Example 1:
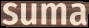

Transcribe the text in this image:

suma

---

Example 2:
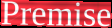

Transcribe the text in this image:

Premise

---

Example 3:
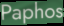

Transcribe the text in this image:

Paphos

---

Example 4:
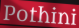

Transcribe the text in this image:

Pothini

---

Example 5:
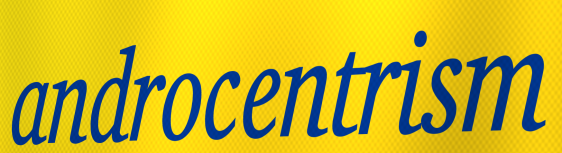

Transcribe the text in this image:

androcentrism